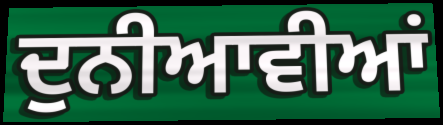
ਦੁਨੀਆਵੀਆਂ